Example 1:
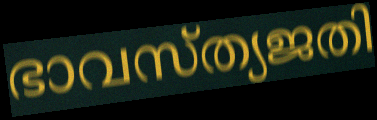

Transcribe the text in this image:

ഭാവസ്ത്യജതി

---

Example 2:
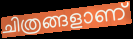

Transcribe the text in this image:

ചിത്രങ്ങളാണ്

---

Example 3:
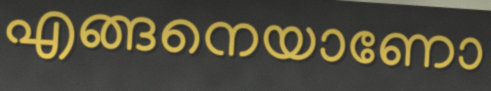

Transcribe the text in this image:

എങ്ങനെയാണോ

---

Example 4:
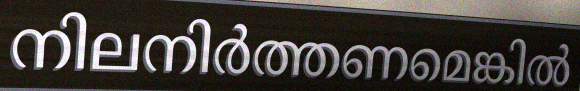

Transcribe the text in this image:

നിലനിർത്തണമെങ്കിൽ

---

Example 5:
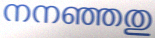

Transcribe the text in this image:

നനഞ്ഞതു